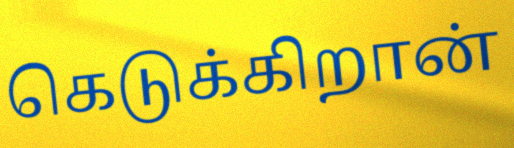
கெடுக்கிறான்